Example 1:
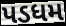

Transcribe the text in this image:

પડધમ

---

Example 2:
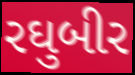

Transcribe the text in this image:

રઘુબીર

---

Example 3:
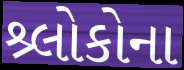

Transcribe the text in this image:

શ્ર્લોકોના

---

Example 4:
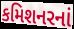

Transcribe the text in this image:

કમિશનરનાં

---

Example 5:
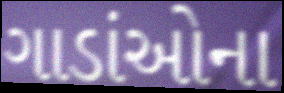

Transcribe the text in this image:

ગાડાંઓના